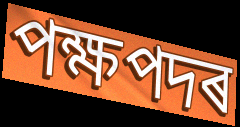
পক্ষপদৰ